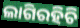
ଲାଗିରହିଚି